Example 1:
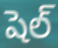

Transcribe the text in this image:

షెల్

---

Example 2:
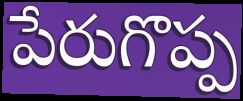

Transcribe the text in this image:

పేరుగొప్ప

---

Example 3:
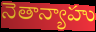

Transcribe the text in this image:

నెతాన్యాహు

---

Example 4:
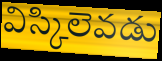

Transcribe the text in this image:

విస్కిలెవడు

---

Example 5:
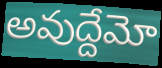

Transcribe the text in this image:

అవుద్దేమో